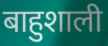
बाहुशाली